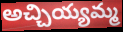
అచ్చియ్యమ్మ